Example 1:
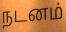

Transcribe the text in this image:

நடனம்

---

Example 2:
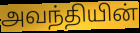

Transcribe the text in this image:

அவந்தியின்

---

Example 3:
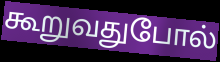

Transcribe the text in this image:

கூறுவதுபோல்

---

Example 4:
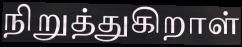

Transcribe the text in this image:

நிறுத்துகிறாள்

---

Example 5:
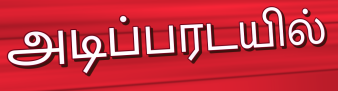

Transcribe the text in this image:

அடிப்பரடயில்